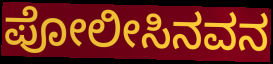
ಪೋಲೀಸಿನವನ